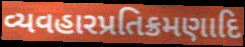
વ્યવહારપ્રતિક્રમણાદિ